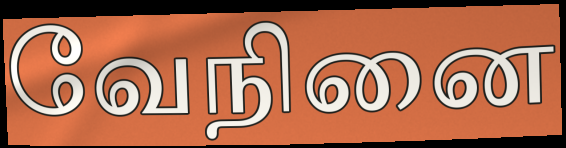
வேநினை